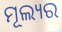
ମୂଲ୍ୟର